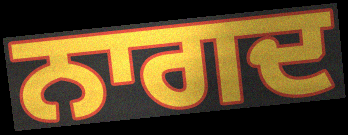
ਨਾਗਦ